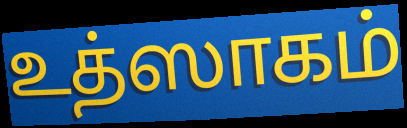
உத்ஸாகம்